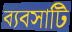
ব্যবসাটি